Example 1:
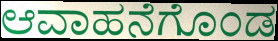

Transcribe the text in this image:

ಆವಾಹನೆಗೊಂಡ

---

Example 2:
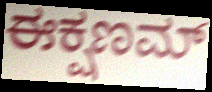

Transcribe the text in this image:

ಈಕ್ಷಣಮ್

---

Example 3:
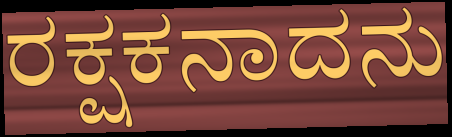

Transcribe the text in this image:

ರಕ್ಷಕನಾದನು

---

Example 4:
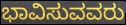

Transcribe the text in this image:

ಭಾವಿಸುವವರು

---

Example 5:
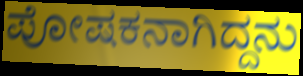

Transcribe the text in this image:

ಪೋಷಕನಾಗಿದ್ದನು